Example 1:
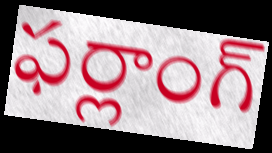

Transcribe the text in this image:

ఫర్లాంగ్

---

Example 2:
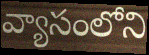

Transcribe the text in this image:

వ్యాసంలోని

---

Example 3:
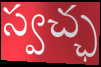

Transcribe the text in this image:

స్వచ్ఛ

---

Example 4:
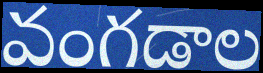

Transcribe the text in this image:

వంగడాల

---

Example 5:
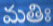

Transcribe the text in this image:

మతిః